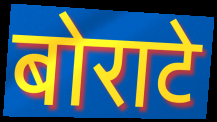
बोराटे